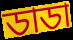
ডাডা